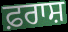
ਫ਼ਰਾਸ਼